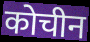
कोचीन